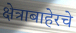
क्षेत्राबाहेरचे